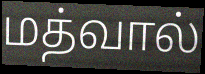
மத்வால்